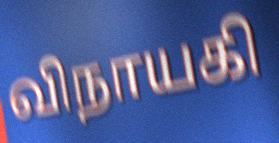
விநாயகி